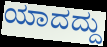
ಯಾದದ್ದು